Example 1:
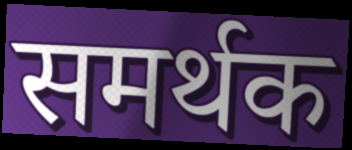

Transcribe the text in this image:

समर्थक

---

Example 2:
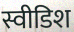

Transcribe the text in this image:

स्वीडिश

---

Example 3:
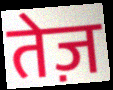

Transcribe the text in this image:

तेज़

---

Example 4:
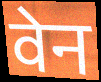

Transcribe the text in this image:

वेन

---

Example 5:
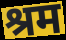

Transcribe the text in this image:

श्रम